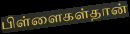
பிள்ளைகள்தான்